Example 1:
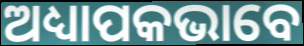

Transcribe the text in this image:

ଅଧ୍ୟାପକଭାବେ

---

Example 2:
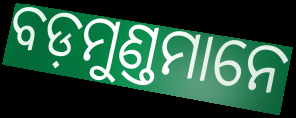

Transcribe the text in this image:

ବଡ଼ମୁଣ୍ଡମାନେ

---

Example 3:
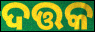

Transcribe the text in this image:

ଦତ୍ତକ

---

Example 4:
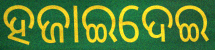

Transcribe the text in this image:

ହଜାଇଦେଇ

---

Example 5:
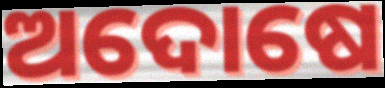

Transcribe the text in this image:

ଅଦୋଷେ